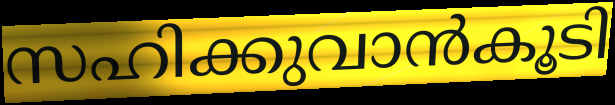
സഹിക്കുവാൻകൂടി